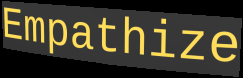
Empathize